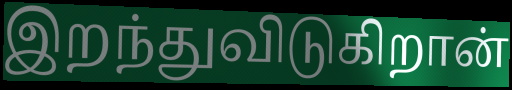
இறந்துவிடுகிறான்